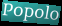
Popolo